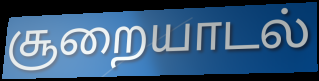
சூறையாடல்